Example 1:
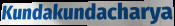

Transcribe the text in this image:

Kundakundacharya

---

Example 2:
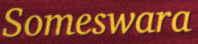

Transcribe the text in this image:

Someswara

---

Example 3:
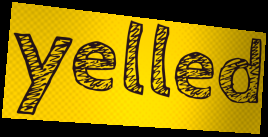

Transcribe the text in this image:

yelled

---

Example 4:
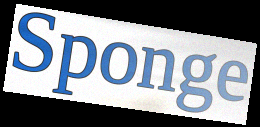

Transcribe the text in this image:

Sponge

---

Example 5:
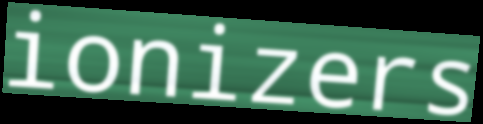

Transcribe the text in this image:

ionizers